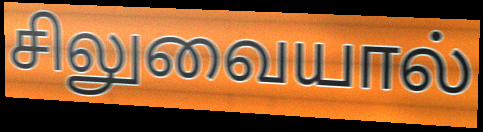
சிலுவையால்